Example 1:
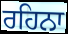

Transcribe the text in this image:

ਰਹਿਨਾ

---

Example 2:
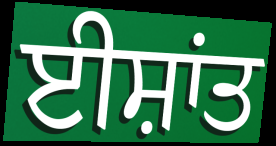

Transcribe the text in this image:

ਈਸ਼ਾਂਤ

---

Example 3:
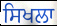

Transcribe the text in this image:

ਸਿਖਲਾ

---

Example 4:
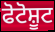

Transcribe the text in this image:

ਫੋਟੋਸ਼ੂਟ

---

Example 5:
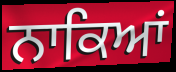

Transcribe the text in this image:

ਨਾਕਿਆਂ